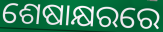
ଶେଷାକ୍ଷରରେ